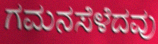
ಗಮನಸೆಳೆದವು